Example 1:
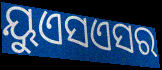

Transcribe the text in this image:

ୟୁଏସଏସର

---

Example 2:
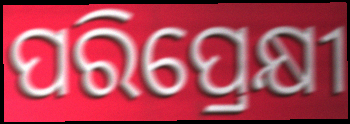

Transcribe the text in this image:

ପରିପ୍ରେକ୍ଷୀ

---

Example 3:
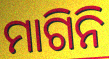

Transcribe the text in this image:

ମାଗିନି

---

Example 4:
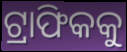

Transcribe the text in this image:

ଟ୍ରାଫିକକୁ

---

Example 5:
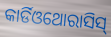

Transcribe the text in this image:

କାର୍ଡିଓଥୋରାସିସ୍